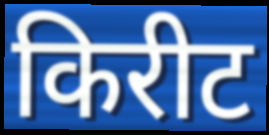
किरीट